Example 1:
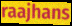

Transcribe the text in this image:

raajhans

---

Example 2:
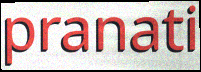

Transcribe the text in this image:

pranati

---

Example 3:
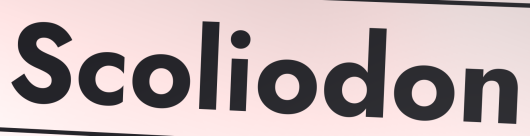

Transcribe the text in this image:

Scoliodon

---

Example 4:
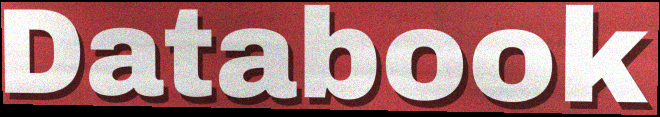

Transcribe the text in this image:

Databook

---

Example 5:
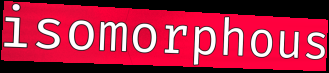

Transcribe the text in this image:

isomorphous